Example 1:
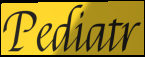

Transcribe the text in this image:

Pediatr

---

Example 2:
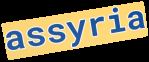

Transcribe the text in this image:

assyria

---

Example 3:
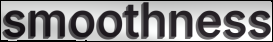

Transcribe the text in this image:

smoothness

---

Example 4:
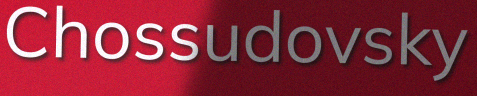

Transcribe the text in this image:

Chossudovsky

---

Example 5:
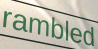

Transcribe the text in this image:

rambled